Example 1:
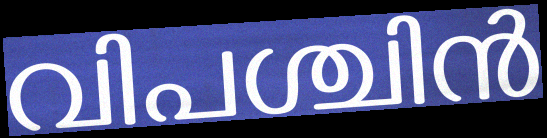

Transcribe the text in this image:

വിപശ്ചിൻ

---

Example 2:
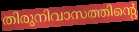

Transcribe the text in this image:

തിരുനിവാസത്തിന്റെ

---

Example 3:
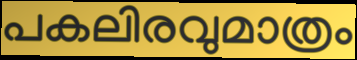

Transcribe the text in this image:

പകലിരവുമാത്രം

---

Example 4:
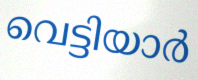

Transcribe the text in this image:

വെട്ടിയാർ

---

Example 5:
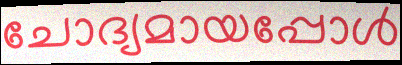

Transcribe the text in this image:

ചോദ്യമായപ്പോൾ